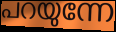
പറയുന്നേ